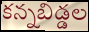
కన్నబిడ్డల